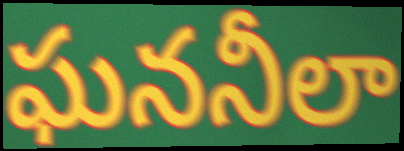
ఘననీలా